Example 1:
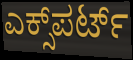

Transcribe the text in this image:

ಎಕ್ಸ್‌ಪರ್ಟ್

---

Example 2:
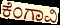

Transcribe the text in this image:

ಕೆಂಗಾವಿ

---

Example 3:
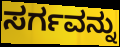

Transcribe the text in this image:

ಸರ್ಗವನ್ನು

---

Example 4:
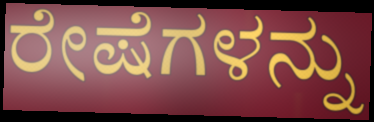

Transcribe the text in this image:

ರೇಷೆಗಳನ್ನು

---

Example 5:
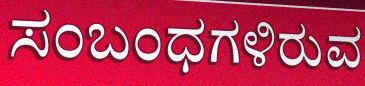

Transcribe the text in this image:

ಸಂಬಂಧಗಳಿರುವ